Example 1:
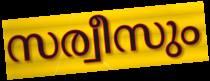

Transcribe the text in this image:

സര്വീസും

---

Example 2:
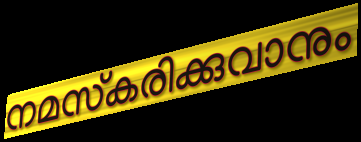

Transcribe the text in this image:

നമസ്‌കരിക്കുവാനും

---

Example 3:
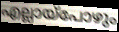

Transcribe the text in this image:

എല്ലായ്പോഴും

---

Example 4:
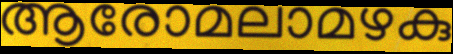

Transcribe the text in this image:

ആരോമലാമഴകു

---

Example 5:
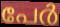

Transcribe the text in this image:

പേർ